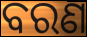
ବରଣ